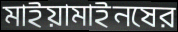
মাইয়ামাইনষের